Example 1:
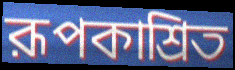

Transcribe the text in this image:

রূপকাশ্রিত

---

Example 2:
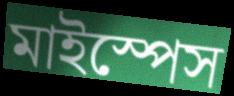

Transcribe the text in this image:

মাইস্পেস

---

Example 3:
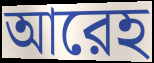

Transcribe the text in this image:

আরেহ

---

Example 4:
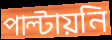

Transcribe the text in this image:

পাল্টায়নি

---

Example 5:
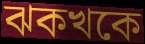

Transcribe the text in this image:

ঝকখকে